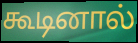
கூடினால்